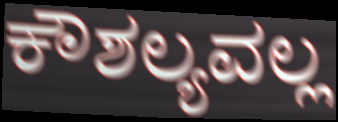
ಕೌಶಲ್ಯವಲ್ಲ